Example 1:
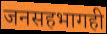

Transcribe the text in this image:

जनसहभागही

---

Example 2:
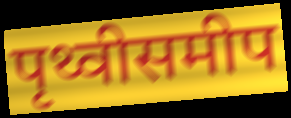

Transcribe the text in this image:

पृथ्वीसमीप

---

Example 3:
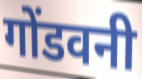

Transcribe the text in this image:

गोंडवनी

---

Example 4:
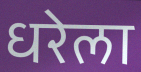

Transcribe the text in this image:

धरेला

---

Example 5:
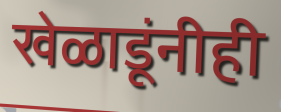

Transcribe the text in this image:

खेळाडूंनीही